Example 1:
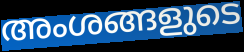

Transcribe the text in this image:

അംശങ്ങളുടെ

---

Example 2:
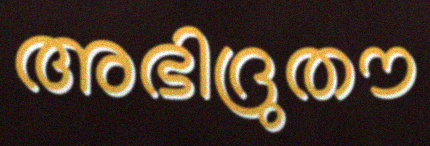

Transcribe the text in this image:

അഭിദ്രുതൗ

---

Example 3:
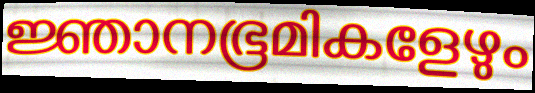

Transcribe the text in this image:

ജ്ഞാനഭൂമികളേഴും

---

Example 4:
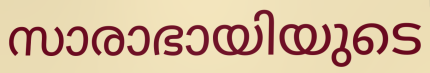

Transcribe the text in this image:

സാരാഭായിയുടെ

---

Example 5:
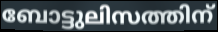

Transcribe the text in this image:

ബോട്ടുലിസത്തിന്